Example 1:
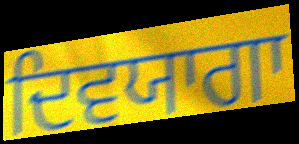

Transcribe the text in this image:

ਦਿਵਯਾਗਾ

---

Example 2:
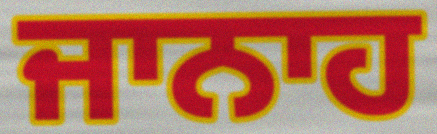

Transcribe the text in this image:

ਜਾਨਾਹ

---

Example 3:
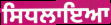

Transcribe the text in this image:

ਸਿਧਲਾਇਆ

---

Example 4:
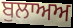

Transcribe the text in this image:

ਬੁਲਾਅਅ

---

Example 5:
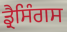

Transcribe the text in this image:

ਡ੍ਰੈਸਿੰਗਸ